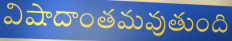
విషాదాంతమవుతుంది